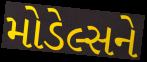
મોડેલ્સને